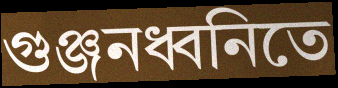
গুঞ্জনধ্বনিতে